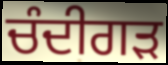
ਚੰਦੀਗੜ